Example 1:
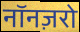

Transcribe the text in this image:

नॉनज़रो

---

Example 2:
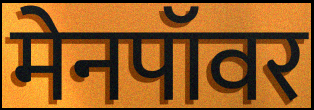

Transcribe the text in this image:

मेनपॉवर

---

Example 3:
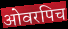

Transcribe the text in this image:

ओवरपिच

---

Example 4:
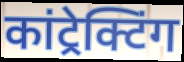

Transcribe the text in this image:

कांट्रेक्टिंग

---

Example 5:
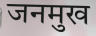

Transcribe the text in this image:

जनमुख